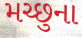
મચ્છુના